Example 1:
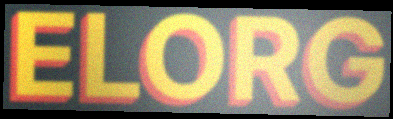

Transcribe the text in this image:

ELORG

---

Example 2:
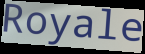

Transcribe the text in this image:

Royale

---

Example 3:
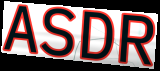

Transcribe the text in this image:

ASDR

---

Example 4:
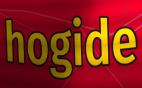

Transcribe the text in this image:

hogide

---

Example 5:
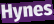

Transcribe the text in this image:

Hynes